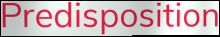
Predisposition